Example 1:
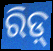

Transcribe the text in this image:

ରିଡ଼୍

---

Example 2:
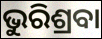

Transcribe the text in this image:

ଭୁରିଶ୍ରବା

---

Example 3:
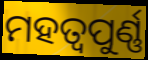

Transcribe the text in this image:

ମହତ୍ୱପୁର୍ଣ୍ଣ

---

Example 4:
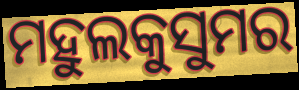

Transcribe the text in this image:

ମହୁଲକୁସୁମର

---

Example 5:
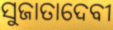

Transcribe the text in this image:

ସୁଜାତାଦେବୀ